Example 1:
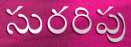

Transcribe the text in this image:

సురరిపు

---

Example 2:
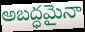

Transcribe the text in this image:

అబద్ధమైనా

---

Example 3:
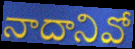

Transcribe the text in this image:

నాదానివో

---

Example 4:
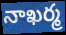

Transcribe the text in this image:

నాఖర్మ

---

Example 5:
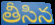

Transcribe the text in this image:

తీసిన